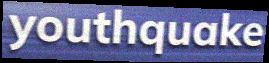
youthquake